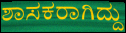
ಶಾಸಕರಾಗಿದ್ದು